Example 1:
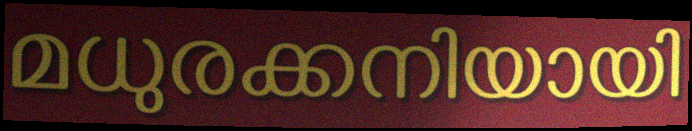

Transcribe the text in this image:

മധുരക്കനിയായി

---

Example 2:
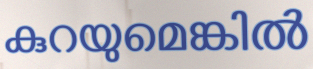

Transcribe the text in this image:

കുറയുമെങ്കിൽ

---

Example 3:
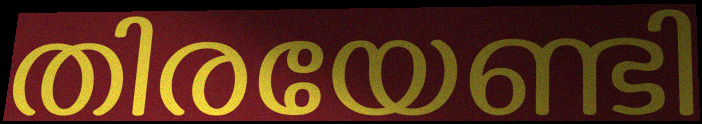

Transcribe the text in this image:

തിരയേണ്ടി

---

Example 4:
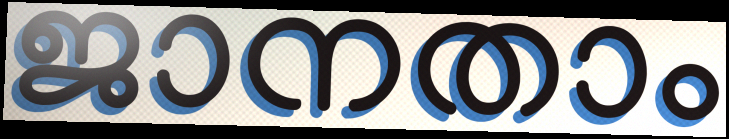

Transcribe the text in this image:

ജാനതാം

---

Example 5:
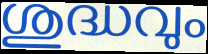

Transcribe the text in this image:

ശുദ്ധവും